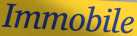
Immobile